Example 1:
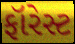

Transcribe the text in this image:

ફૉરેસ્ટ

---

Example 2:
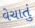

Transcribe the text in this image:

વેચાતું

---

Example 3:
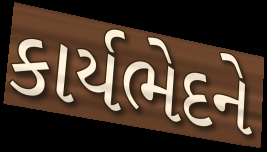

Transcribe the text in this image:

કાર્યભેદને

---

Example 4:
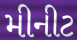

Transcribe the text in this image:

મીનીટ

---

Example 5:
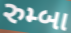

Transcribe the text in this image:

રુમ્બા